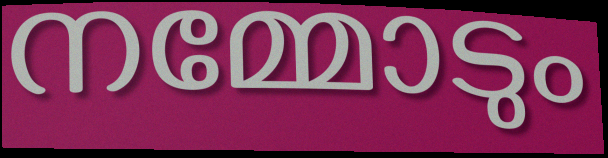
നമ്മോടും